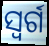
ସ୍ବର୍ଗ